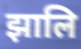
झालि